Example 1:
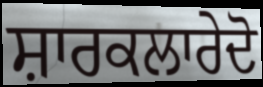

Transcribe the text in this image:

ਸ਼ਾਰਕਲਾਰੇਦੋ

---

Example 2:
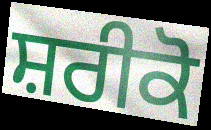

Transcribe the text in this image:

ਸ਼ਰੀਕੋ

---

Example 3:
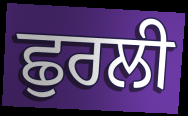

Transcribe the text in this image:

ਛੁਰਲੀ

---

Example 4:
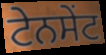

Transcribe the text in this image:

ਟੇਨਸੇਂਟ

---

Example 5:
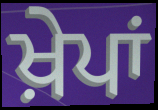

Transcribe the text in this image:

ਖ਼ੇਪਾਂ